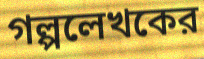
গল্পলেখকের